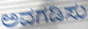
ಅವಗಡಿಸು